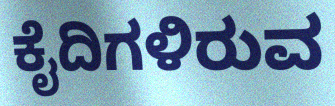
ಕೈದಿಗಳಿರುವ